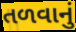
તળવાનું